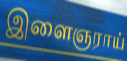
இளைஞராய்